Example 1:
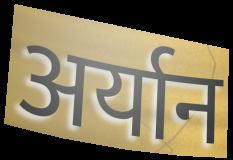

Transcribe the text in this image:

अर्यान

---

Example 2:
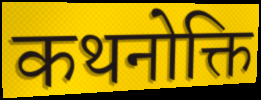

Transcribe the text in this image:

कथनोक्ति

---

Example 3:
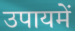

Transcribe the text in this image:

उपायमें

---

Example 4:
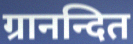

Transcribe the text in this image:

ग्रानन्दित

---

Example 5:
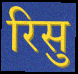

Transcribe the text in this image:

रिसु